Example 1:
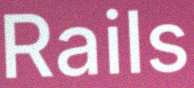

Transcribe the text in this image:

Rails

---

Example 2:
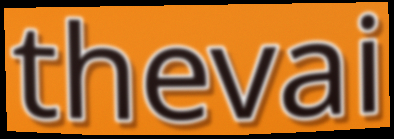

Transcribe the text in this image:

thevai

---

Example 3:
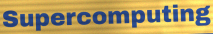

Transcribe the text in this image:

Supercomputing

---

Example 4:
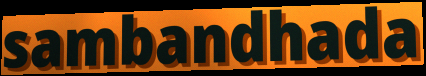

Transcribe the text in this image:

sambandhada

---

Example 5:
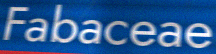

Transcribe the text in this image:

Fabaceae